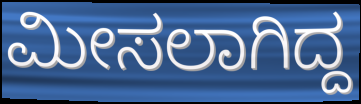
ಮೀಸಲಾಗಿದ್ದ